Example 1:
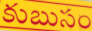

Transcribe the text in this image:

కుబుసం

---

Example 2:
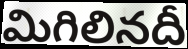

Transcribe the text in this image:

మిగిలినదీ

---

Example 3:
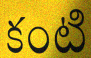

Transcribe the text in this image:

కంటి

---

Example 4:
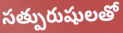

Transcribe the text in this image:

సత్పురుషులతో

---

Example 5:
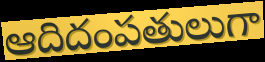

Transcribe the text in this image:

ఆదిదంపతులుగా